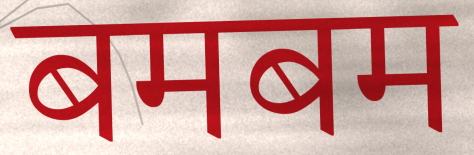
बमबम